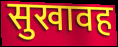
सुखावह